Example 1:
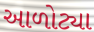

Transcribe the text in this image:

આળોટ્યા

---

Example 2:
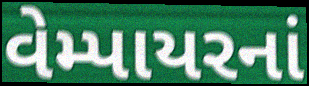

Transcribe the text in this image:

વેમ્પાયરનાં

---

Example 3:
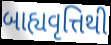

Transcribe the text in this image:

બાહ્યવૃત્તિથી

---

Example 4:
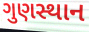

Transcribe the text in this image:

ગુણસ્થાન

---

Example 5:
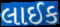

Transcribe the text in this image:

લાઈક